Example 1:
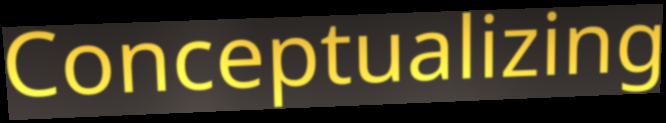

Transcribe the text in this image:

Conceptualizing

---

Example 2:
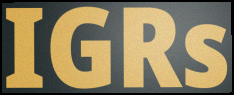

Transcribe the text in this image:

IGRs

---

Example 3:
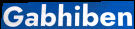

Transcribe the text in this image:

Gabhiben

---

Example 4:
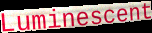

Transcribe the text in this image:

Luminescent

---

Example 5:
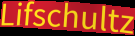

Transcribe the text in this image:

Lifschultz